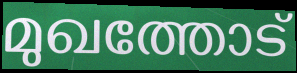
മുഖത്തോട്